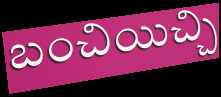
బంచియిచ్చి